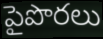
పైపొరలు